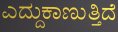
ಎದ್ದುಕಾಣುತ್ತಿದೆ